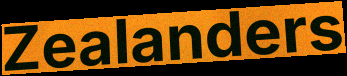
Zealanders